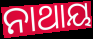
ନାଥାୟ